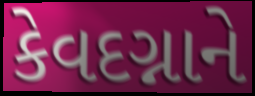
કેવદગ્નાને